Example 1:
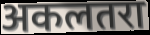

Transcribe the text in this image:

अकलतरा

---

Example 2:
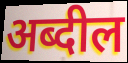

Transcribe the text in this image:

अब्दील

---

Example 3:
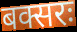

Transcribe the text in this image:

बक्सरः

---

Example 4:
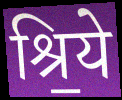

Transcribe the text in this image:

श्रि॒ये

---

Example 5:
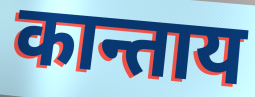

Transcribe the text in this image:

कान्ताय